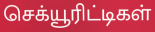
செக்யூரிட்டிகள்